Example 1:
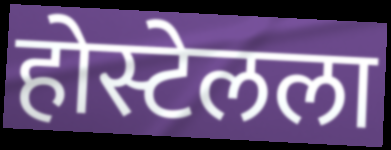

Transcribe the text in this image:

होस्टेलला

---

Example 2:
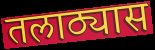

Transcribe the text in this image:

तलाठ्यास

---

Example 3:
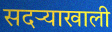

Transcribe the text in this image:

सदऱ्याखाली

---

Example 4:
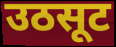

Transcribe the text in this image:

उठसूट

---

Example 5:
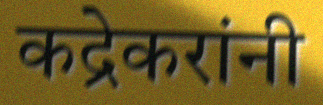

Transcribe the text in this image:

कद्रेकरांनी